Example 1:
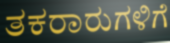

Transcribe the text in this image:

ತಕರಾರುಗಳಿಗೆ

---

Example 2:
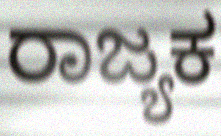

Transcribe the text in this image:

ರಾಜ್ಯಕ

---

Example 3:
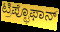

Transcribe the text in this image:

ಟ್ರಿಪ್ಟೊಫಾನ್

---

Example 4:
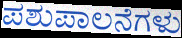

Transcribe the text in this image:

ಪಶುಪಾಲನೆಗಳು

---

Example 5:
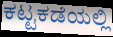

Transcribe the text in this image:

ಕಟ್ಟಕಡೆಯಲ್ಲಿ